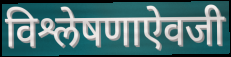
विश्लेषणाऐवजी